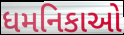
ધમનિકાઓ